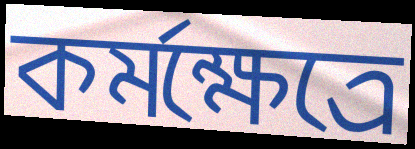
কর্মক্ষেত্রে